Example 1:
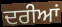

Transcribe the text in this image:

ਦਰੀਆਂ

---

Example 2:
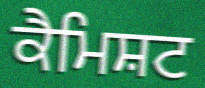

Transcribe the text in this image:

ਕੈਮਿਸ਼ਟ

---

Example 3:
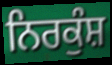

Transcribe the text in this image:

ਨਿਰਕੁੰਸ਼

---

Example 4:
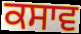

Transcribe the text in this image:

ਕਸਾਵ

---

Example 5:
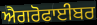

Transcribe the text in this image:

ਐਗਰੋਫਾਈਬਰ